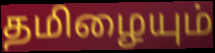
தமிழையும்